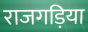
राजगड़िया